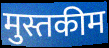
मुस्तकीम